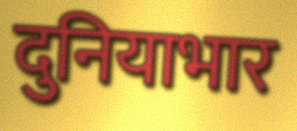
दुनियाभार